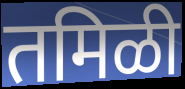
तमिळी